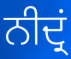
ਨੀਦ੍ਰਂ